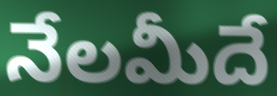
నేలమీదే